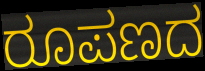
ರೂಪಣದ